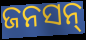
ଜନସନ୍